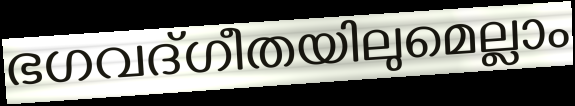
ഭഗവദ്ഗീതയിലുമെല്ലാം